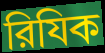
রিযিক